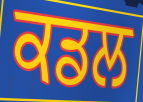
ਕਡਲ